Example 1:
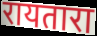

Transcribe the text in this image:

रायतारा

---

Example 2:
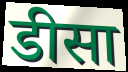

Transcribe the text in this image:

डीसा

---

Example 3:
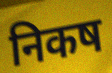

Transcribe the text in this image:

निकष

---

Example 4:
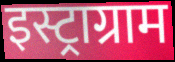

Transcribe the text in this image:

इस्ट्राग्राम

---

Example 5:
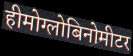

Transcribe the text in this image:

हीमोग्लोबिनोमीटर